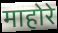
माहोरे